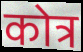
कोत्र